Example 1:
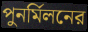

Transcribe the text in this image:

পুনর্মিলনের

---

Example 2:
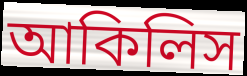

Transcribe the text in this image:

আকিলিস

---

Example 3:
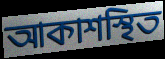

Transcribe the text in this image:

আকাশস্থিত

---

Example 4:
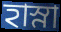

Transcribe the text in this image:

হাস্না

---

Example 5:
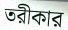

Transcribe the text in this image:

তরীকার